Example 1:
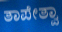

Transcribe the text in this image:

ತಾಪೇತ್ವಾ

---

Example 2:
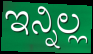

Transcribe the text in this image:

ಇನ್ನಿಲ್ಲ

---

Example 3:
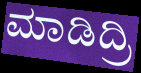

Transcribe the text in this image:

ಮಾಡಿದ್ರಿ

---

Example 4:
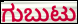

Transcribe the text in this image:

ಗುಬುಟು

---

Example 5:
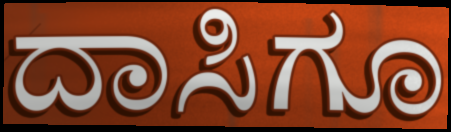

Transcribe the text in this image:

ದಾಸಿಗೂ